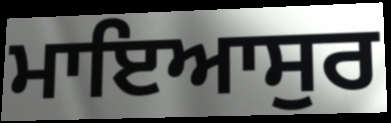
ਮਾਇਆਸੁਰ